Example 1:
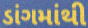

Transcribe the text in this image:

ડાંગમાંથી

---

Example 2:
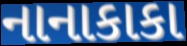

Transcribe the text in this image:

નાનાકાકા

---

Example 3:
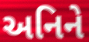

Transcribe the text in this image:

અનિને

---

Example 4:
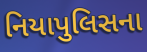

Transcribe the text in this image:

નિયાપુલિસના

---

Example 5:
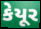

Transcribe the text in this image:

કેયૂર